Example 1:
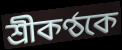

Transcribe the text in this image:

শ্রীকণ্ঠকে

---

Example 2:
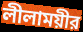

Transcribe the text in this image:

লীলাময়ীর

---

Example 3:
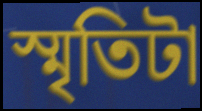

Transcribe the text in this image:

স্মৃতিটা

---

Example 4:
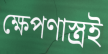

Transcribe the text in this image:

ক্ষেপণাস্ত্রই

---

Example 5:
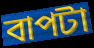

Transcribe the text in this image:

বাপটা